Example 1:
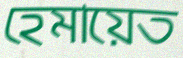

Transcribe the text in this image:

হেমায়েত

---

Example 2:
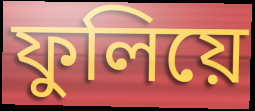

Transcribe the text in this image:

ফুলিয়ে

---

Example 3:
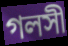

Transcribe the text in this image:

গলসী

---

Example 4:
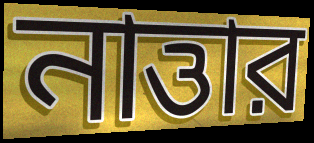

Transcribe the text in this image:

নাত্তার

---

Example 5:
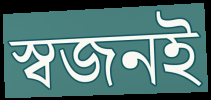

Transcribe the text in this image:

স্বজনই